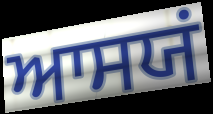
ਆਸਯਂ